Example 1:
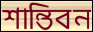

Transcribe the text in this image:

শান্তিবন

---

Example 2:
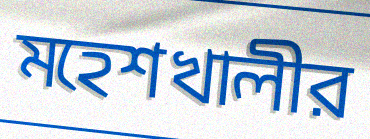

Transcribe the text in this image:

মহেশখালীর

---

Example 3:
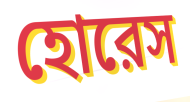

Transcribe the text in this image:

হোরেস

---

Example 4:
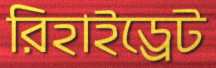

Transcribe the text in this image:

রিহাইড্রেট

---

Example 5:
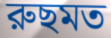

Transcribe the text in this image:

রুছমত